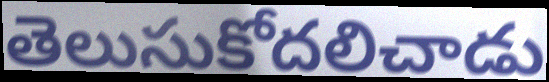
తెలుసుకోదలిచాడు